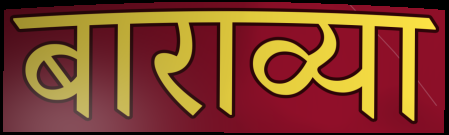
बाराव्या